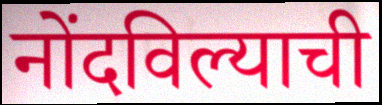
नोंदविल्याची